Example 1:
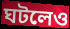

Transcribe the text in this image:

ঘটলেও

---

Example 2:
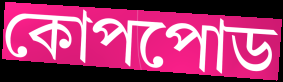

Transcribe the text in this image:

কোপপোড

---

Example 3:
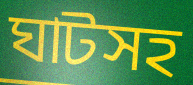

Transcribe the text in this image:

ঘাটসহ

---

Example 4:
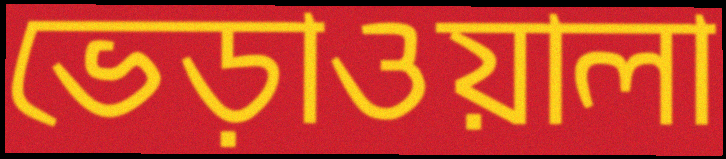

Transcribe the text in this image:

ভেড়াওয়ালা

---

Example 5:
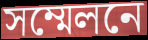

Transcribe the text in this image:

সম্মেলনে